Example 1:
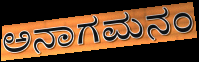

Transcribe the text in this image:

ಅನಾಗಮನಂ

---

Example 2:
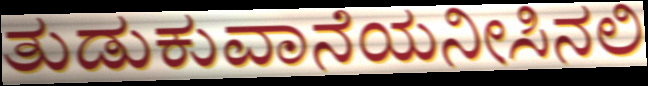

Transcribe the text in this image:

ತುಡುಕುವಾನೆಯನೀಸಿನಲಿ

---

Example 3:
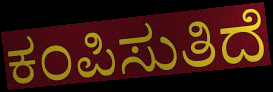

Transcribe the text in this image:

ಕಂಪಿಸುತಿದೆ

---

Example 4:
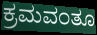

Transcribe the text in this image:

ಕ್ರಮವಂತೂ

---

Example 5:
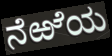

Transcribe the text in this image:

ನೆಱೆಯ